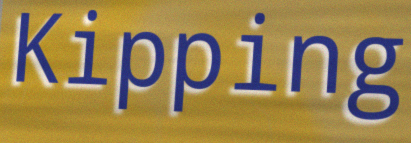
Kipping